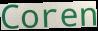
Coren